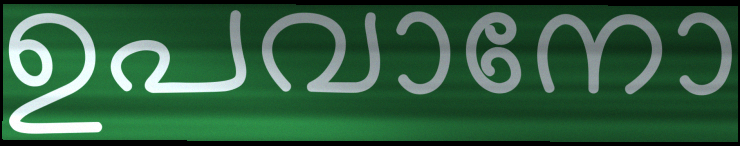
ഉപവാനോ